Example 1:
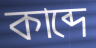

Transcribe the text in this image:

কাব্দে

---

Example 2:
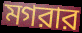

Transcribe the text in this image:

মগরার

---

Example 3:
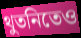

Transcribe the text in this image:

থুতনিতেও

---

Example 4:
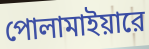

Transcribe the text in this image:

পোলামাইয়ারে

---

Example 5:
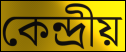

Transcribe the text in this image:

কেন্দ্রীয়